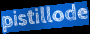
pistillode